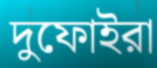
দুফোইরা